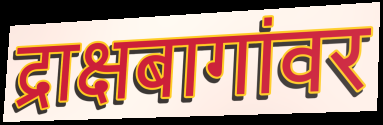
द्राक्षबागांवर